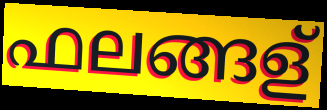
ഫലങ്ങള്